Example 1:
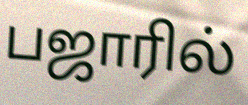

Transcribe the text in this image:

பஜாரில்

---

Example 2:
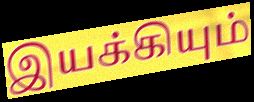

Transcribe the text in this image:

இயக்கியும்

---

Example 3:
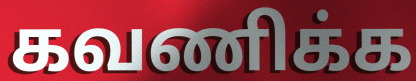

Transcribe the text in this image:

கவணிக்க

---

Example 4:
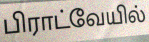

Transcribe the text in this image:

பிராட்வேயில்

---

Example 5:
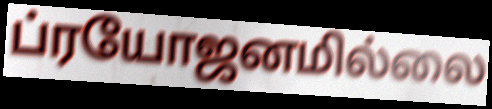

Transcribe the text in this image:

ப்ரயோஜனமில்லை